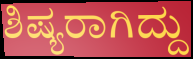
ಶಿಷ್ಯರಾಗಿದ್ದು